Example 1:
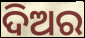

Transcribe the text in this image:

ଦିଅର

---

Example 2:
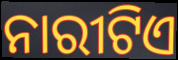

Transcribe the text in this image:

ନାରୀଟିଏ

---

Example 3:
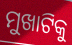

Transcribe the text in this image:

ମୁଖାଟିକୁ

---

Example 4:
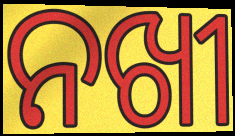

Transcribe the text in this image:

ନଖୀ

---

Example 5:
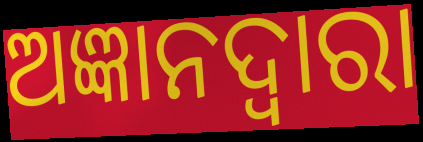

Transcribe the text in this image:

ଅଜ୍ଞାନଦ୍ଵାରା